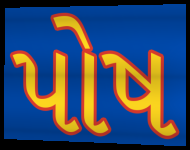
પોષ